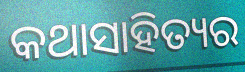
କଥାସାହିତ୍ୟର